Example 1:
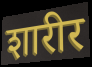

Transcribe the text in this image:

शारीर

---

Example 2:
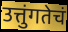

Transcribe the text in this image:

उत्तुंगतेचं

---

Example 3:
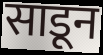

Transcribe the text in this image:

साडून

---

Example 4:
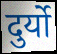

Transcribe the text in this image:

दुर्यो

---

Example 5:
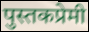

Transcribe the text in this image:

पुस्तकप्रेमी